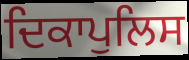
ਦਿਕਾਪੁਲਿਸ